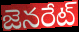
జెనరేట్